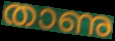
താണു